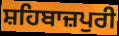
ਸ਼ਹਿਬਾਜ਼ਪੁਰੀ